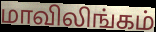
மாவிலிங்கம்